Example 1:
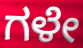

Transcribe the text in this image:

ಗಳೇ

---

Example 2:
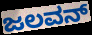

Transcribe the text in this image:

ಜಲವನ್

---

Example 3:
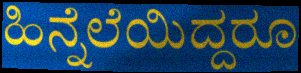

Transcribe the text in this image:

ಹಿನ್ನೆಲೆಯಿದ್ದರೂ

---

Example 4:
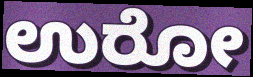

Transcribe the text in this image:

ಉರೋ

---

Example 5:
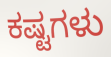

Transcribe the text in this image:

ಕಷ್ಟಗಳು